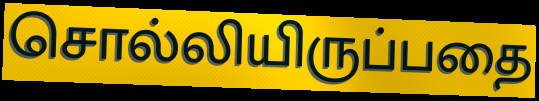
சொல்லியிருப்பதை